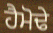
ਹੈਮੋਢੇ